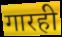
गारही